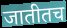
जातीतच